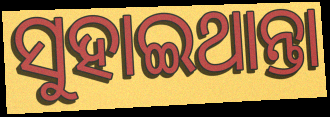
ସୁହାଇଥାନ୍ତା